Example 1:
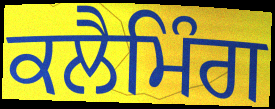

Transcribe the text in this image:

ਕਲੈਮਿੰਗ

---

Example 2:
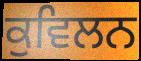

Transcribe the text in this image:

ਕੁਵਿਲਨ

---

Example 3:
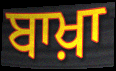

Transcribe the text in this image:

ਬਾਖ਼ਾ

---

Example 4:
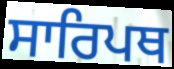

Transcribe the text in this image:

ਸਾਰਿਪਥ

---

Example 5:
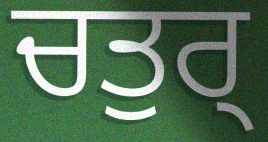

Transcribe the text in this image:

ਚਤੁਰ੍